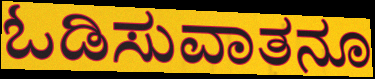
ಓಡಿಸುವಾತನೂ